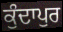
ਕੁੰਦਾਪੁਰ